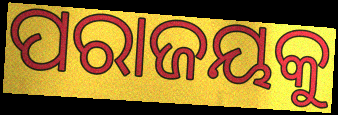
ପରାଜୟକୁ